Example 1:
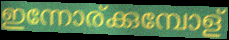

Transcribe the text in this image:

ഇന്നോര്ക്കുമ്പോള്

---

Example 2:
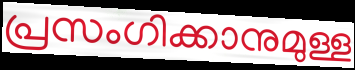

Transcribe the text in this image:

പ്രസംഗിക്കാനുമുള്ള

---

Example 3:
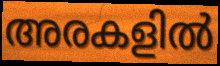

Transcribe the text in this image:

അരകളിൽ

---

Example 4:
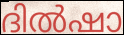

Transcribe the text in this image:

ദിൽഷാ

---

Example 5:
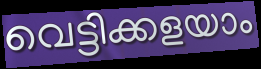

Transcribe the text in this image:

വെട്ടിക്കളയാം